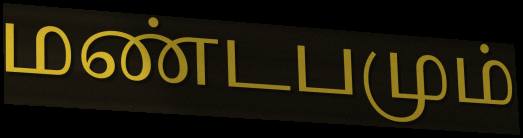
மண்டபமும்